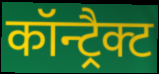
कॉन्‍ट्रैक्‍ट